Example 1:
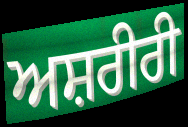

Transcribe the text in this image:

ਅਸ਼ਰੀਰੀ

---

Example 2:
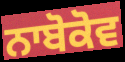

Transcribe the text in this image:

ਨਾਬੋਕੋਵ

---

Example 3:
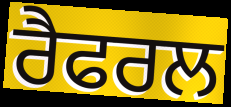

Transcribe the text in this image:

ਰੈਫਰਲ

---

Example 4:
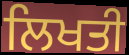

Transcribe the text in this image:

ਲਿਖਤੀ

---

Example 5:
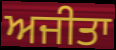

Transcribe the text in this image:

ਅਜੀਤਾ